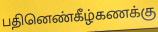
பதினெண்கீழ்கணக்கு